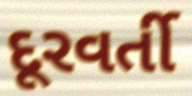
દૂરવર્તી